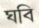
ঘবি